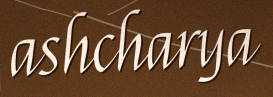
ashcharya